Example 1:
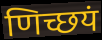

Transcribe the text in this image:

णिच्छयं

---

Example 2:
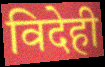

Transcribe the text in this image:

विदेही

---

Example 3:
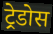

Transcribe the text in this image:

ट्रेडोस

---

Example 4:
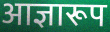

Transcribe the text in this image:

आज्ञारूप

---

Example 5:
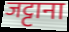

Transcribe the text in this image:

जट्टाना